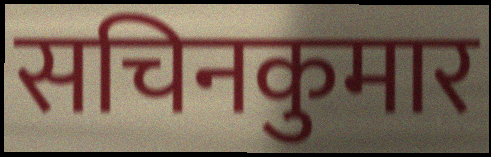
सचिनकुमार